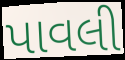
પાવલી